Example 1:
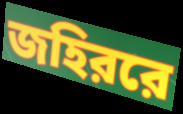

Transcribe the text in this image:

জহিররে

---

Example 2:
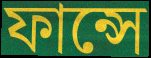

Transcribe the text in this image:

ফান্সে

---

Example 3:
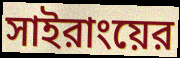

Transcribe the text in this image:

সাইরাংয়ের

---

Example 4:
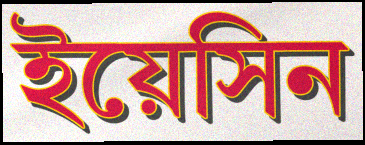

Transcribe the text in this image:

ইয়েসিন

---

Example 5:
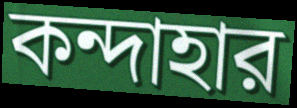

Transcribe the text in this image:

কন্দাহার